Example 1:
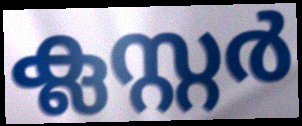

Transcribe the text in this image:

ക്ലസ്റ്റർ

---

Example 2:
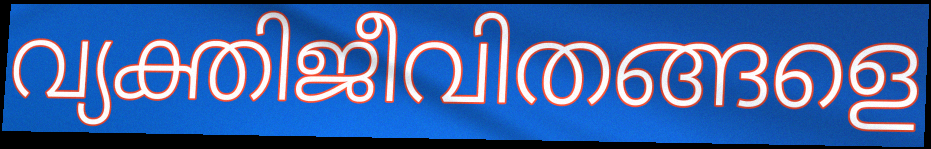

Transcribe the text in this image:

വ്യക്തിജീവിതങ്ങളെ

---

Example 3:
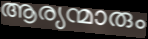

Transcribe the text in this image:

ആര്യന്മാരും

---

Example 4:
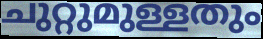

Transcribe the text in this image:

ചുറ്റുമുള്ളതും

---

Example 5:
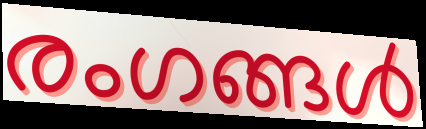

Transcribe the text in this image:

രംഗങ്ങൾ